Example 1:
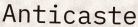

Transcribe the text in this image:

Anticaste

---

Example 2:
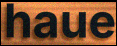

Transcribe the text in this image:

haue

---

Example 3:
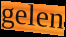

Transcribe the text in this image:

gelen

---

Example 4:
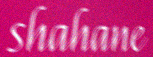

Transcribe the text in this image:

shahane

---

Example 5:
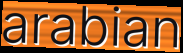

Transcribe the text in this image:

arabian